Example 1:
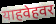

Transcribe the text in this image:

याहवेहवर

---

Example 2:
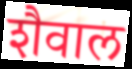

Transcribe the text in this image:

शैवाल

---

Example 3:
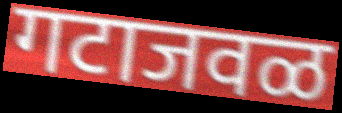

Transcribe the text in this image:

गटाजवळ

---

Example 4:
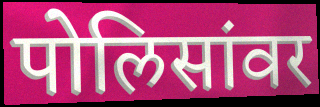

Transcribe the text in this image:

पोलिसांवर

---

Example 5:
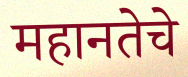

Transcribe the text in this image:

महानतेचे